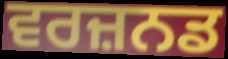
ਵਰਜ਼ਨਡ